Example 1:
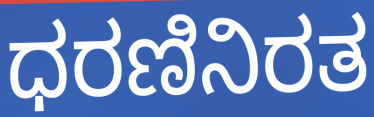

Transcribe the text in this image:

ಧರಣಿನಿರತ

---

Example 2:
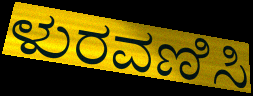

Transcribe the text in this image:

ಳುರವಣಿಸಿ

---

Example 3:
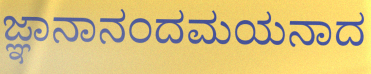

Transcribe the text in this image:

ಜ್ಞಾನಾನಂದಮಯನಾದ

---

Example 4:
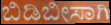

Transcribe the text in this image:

ಬಿಡಿಬೀಸಾಗಿ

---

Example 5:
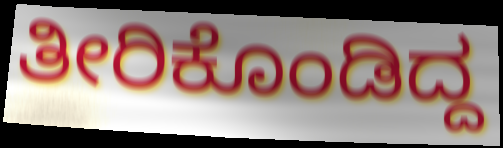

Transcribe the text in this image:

ತೀರಿಕೊಂಡಿದ್ದ